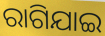
ରାଗିଯାଇ